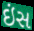
ઇંસ